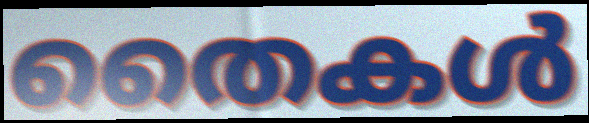
തൈകൾ